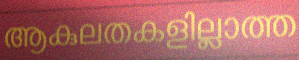
ആകുലതകളില്ലാത്ത